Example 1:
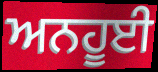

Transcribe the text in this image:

ਅਨਹੂਈ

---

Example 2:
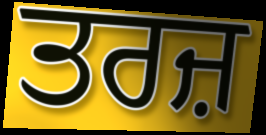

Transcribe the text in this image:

ਤਰਜ਼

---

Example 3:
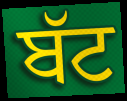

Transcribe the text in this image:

ਬੱਟ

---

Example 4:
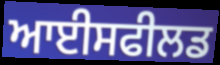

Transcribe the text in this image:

ਆਈਸਫੀਲਡ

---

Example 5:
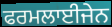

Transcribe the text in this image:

ਫਰਮਲਾਈਜੇਨ